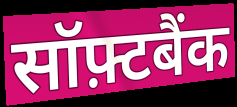
सॉफ़्टबैंक